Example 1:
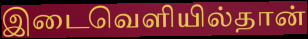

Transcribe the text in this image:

இடைவெளியில்தான்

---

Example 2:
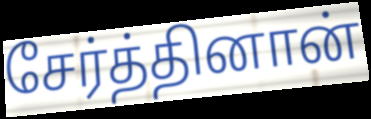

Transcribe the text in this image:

சேர்த்தினான்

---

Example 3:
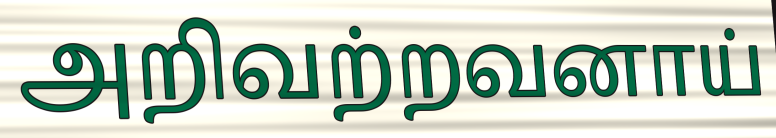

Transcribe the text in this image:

அறிவற்றவனாய்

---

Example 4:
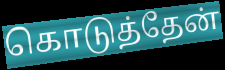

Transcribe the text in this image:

கொடுத்தேன்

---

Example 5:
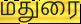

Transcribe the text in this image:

மதுரை